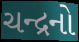
ચન્દ્રનો